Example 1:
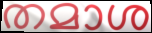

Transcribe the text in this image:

തമാശ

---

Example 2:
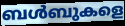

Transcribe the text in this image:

ബൾബുകളെ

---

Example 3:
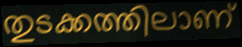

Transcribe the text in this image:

തുടക്കത്തിലാണ്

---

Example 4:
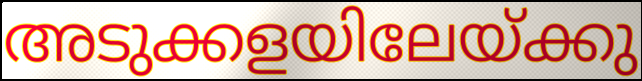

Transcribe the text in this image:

അടുക്കളയിലേയ്ക്കു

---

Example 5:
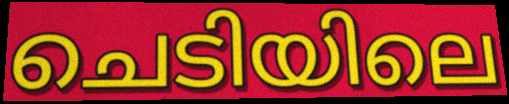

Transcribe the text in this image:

ചെടിയിലെ